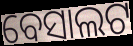
ବେସାଲଟ